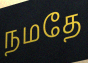
நமதே